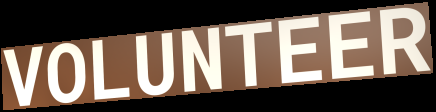
VOLUNTEER